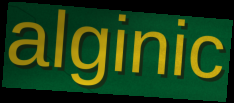
alginic